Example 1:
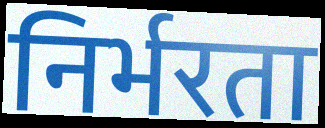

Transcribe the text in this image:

निर्भरता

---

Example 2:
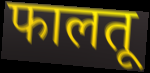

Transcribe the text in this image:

फालतू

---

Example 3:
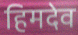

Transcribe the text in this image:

हिमदेव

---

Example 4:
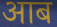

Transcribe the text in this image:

आब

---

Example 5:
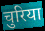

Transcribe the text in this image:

चुरिया